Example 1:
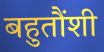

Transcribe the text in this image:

बहुतौंशी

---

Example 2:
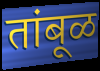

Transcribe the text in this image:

तांबूळ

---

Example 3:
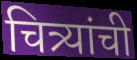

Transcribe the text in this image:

चित्र्यांची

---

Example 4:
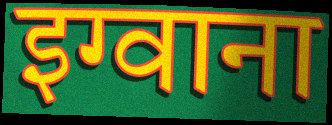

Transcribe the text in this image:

इग्वाना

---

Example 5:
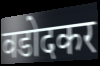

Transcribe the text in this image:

वडोदकर